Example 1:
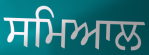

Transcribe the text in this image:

ਸਮਿਆਲ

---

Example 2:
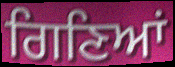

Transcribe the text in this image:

ਗਿਣਿਆਂ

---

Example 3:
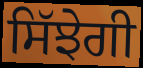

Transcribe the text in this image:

ਸਿੱਝੇਗੀ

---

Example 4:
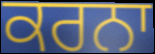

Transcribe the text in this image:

ਕਰਨਾ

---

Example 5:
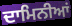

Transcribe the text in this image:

ਦਾਮਿਨੀਆਂ